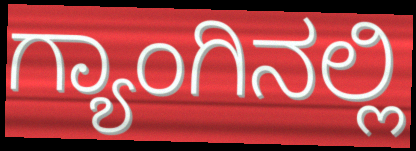
ಗ್ಯಾಂಗಿನಲ್ಲಿ